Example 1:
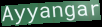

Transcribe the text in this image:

Ayyangar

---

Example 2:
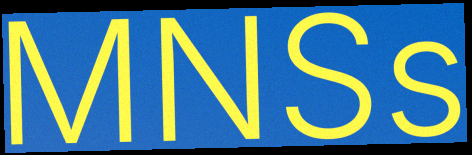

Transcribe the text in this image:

MNSs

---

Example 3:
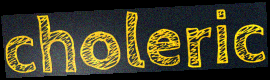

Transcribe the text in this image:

choleric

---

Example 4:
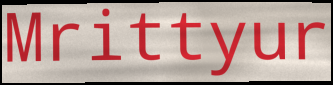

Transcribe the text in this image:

Mrittyur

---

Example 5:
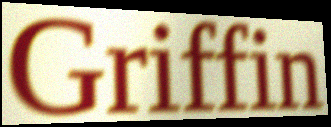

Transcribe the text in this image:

Griffin